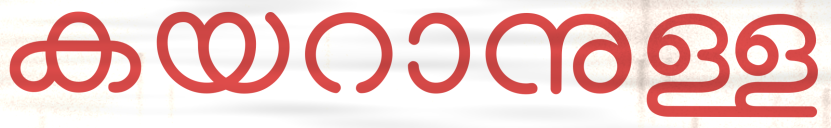
കയറാനുള്ള